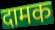
दामक